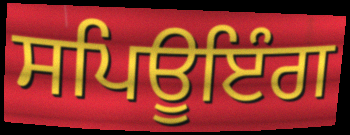
ਸਪਿਊਇੰਗ